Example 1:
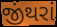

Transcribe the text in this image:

જીંથરાં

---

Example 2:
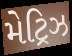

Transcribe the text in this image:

મેટ્રિઝ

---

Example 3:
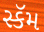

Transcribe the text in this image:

સ્કૅમ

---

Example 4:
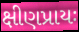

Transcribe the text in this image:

ક્ષીણપ્રાયઃ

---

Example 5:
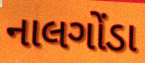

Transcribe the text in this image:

નાલગોંડા